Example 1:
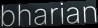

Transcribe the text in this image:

bharian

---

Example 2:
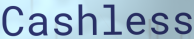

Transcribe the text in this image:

Cashless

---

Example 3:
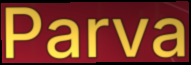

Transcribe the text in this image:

Parva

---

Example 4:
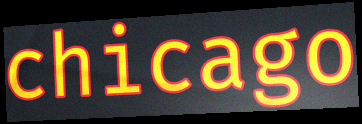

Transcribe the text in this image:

chicago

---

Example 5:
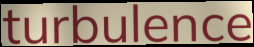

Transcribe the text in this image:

turbulence